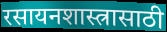
रसायनशास्त्रासाठी